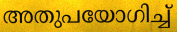
അതുപയോഗിച്ച്